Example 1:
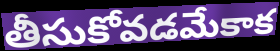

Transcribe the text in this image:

తీసుకోవడమేకాక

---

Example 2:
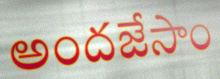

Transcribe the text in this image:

అందజేసాం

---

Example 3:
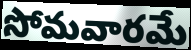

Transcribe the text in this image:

సోమవారమే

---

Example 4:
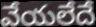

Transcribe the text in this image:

వేయలేదే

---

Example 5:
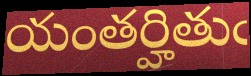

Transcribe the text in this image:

యంతర్హితుఁ